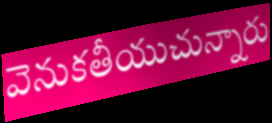
వెనుకతీయుచున్నారు